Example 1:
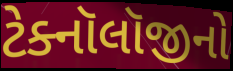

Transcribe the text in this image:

ટેક્નૉલૉજીનો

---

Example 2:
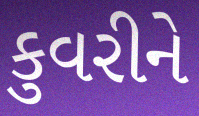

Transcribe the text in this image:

કુવરીને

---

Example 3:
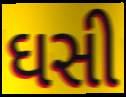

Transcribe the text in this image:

ઘસી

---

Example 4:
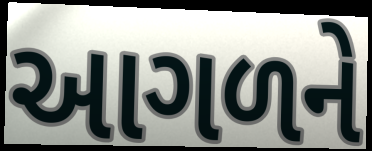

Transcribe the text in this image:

આગળને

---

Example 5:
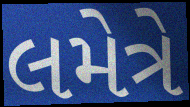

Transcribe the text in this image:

લમેત્રે